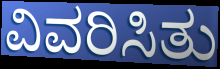
ವಿವರಿಸಿತು